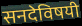
सनदेविषयी